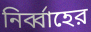
নির্ব্বাহের